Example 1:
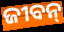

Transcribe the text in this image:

ଜୀବନ୍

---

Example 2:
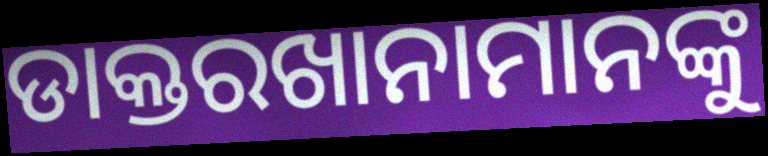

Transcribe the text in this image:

ଡାକ୍ତରଖାନାମାନଙ୍କୁ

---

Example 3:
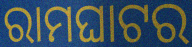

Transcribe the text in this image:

ରାମଘାଟର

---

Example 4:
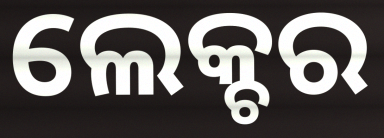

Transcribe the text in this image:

ଲେକ୍ଚର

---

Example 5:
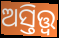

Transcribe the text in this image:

ଅସ୍ତିତ୍ତ୍ବ